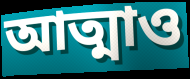
আত্মাও